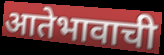
आतेभावाची